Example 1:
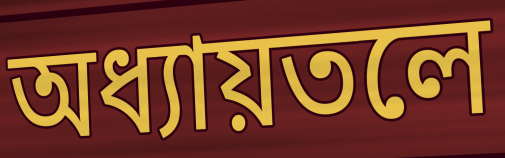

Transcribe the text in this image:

অধ্যায়তলে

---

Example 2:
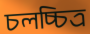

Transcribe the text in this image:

চলচ্চিত্র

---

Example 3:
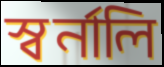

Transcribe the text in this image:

স্বর্নালি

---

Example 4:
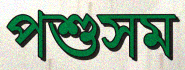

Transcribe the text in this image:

পশুসম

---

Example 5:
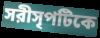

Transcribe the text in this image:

সরীসৃপটিকে